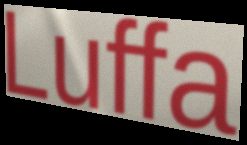
Luffa